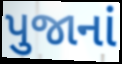
પુજાનાં